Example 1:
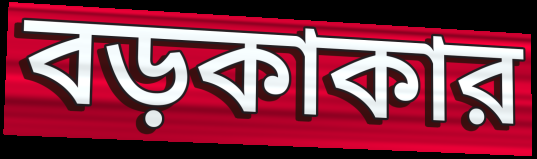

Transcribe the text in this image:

বড়কাকার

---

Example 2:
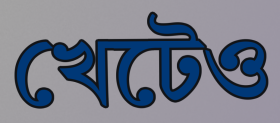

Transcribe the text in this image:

খেটেও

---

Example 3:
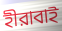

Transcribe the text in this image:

হীরাবাই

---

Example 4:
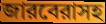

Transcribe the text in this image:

জারবেরাসহ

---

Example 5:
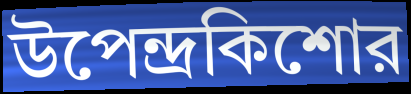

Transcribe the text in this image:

উপেন্দ্রকিশোর